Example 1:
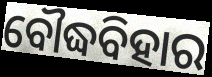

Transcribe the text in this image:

ବୌଦ୍ଧବିହାର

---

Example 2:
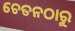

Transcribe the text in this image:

ଚେତନଠାରୁ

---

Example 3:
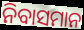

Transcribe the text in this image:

ନିବାସମାନ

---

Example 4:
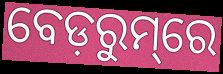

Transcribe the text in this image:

ବେଡ଼ରୁମ୍‌ରେ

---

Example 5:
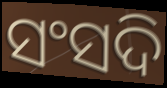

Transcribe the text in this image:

ସଂସଦି